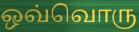
ஒவ்வொரு